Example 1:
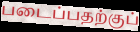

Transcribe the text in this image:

படைப்பதற்குப்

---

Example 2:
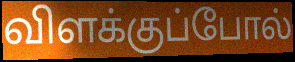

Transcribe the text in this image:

விளக்குப்போல்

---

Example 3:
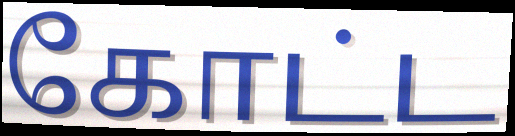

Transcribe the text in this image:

கோட்ட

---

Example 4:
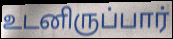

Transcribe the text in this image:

உடனிருப்பார்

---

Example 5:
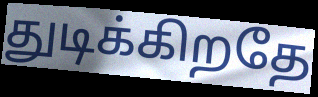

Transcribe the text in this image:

துடிக்கிறதே